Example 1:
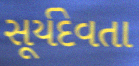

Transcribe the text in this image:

સૂર્યદેવતા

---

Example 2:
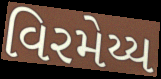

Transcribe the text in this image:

વિરમેય્ય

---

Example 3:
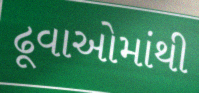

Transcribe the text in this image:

ઢૂવાઓમાંથી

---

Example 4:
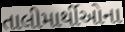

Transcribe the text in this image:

તાલીમાર્થીઓના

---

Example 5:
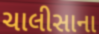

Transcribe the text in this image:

ચાલીસાના